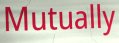
Mutually